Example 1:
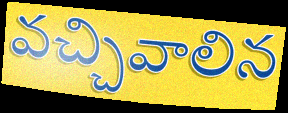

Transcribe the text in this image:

వచ్చివాలిన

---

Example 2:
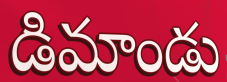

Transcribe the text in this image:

డిమాండు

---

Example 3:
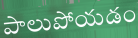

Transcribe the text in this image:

పాలుపోయడం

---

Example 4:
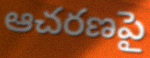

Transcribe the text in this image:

ఆచరణపై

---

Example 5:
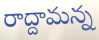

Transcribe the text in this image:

రాద్దామన్న